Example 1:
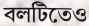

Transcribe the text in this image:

বলটিতেও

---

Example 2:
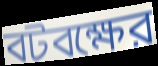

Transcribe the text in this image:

বটবক্ষের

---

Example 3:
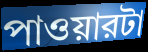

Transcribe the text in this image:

পাওয়ারটা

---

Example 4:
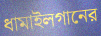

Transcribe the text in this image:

ধামাইলগানের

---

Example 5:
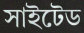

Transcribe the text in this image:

সাইটেড